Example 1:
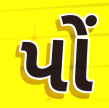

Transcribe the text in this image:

પોં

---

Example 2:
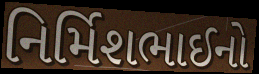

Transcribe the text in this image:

નિર્મિશભાઈનો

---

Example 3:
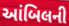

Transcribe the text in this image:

આંબિલની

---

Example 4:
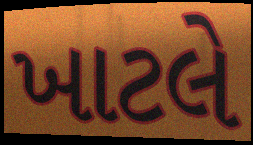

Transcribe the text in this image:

ખાટલે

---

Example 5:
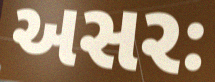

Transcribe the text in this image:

અસરઃ